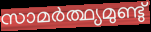
സാമർത്ഥ്യമുണ്ടു്